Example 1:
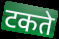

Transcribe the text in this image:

टकते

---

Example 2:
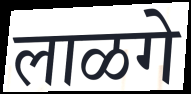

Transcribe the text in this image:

लाळगे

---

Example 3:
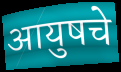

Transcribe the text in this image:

आयुषचे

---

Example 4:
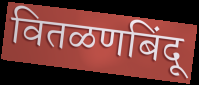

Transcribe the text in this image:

वितळणबिंदू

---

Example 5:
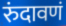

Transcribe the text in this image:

रुंदावणं